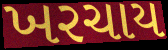
ખરચાય